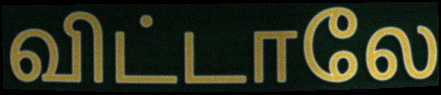
விட்டாலே